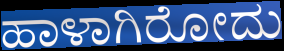
ಹಾಳಾಗಿರೋದು